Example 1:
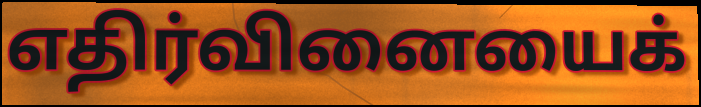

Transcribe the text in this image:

எதிர்வினையைக்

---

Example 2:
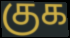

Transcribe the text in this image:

குக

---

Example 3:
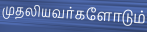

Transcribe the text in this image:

முதலியவர்களோடும்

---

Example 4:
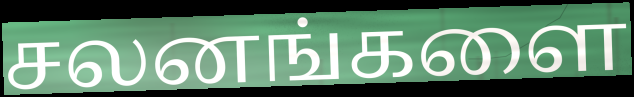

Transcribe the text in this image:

சலனங்களை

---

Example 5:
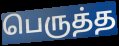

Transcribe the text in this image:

பெருத்த